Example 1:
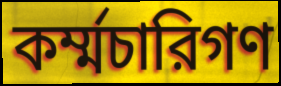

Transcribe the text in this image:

কর্ম্মচারিগণ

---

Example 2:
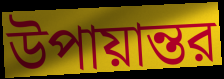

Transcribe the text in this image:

উপায়ান্তর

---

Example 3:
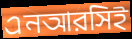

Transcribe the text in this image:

এনআরসিই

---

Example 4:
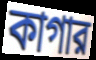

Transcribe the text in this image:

কাগার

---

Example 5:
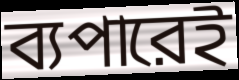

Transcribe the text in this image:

ব্যপারেই